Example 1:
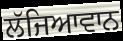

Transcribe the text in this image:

ਲੱਜਿਆਵਾਨ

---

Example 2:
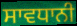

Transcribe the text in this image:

ਸਾਵਧਾਨੀ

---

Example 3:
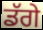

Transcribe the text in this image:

ਡੱਗੇ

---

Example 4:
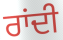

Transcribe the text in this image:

ਰਾਂਦੀ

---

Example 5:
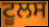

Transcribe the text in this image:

ਟੂਲਸ